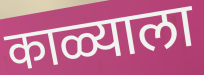
काळ्याला